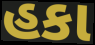
હકા